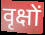
वृक्षों